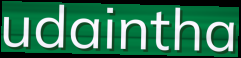
udaintha